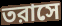
তরাসে